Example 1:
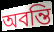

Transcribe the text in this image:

অবন্তি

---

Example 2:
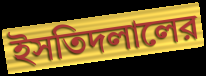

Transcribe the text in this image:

ইসতিদলালের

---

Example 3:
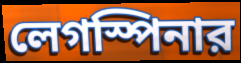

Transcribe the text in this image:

লেগস্পিনার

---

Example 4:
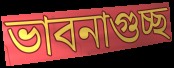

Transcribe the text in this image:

ভাবনাগুচ্ছ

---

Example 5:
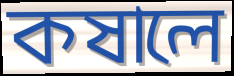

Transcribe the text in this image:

কষালে